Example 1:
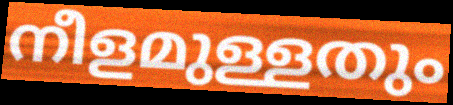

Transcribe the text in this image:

നീളമുള്ളതും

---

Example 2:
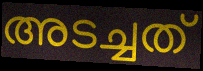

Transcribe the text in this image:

അടച്ചത്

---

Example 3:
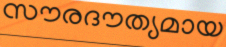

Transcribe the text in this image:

സൗരദൗത്യമായ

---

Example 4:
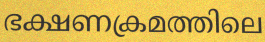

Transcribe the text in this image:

ഭക്ഷണക്രമത്തിലെ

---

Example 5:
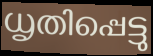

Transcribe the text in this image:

ധൃതിപ്പെട്ടു